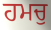
ਹਮਚੁ